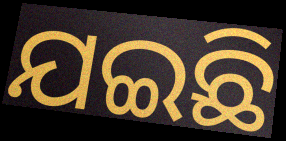
ଯଇଛି